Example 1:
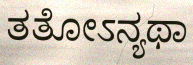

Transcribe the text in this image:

ತತೋಽನ್ಯಥಾ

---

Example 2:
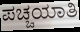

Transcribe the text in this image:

ಪಚ್ಚಯಾತಿ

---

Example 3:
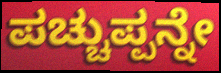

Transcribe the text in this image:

ಪಚ್ಚುಪ್ಪನ್ನೇ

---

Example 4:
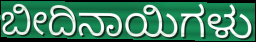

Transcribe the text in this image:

ಬೀದಿನಾಯಿಗಳು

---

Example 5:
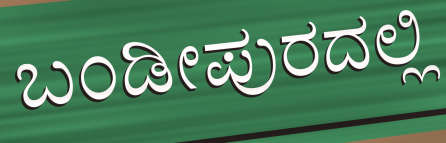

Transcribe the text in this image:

ಬಂಡೀಪುರದಲ್ಲಿ